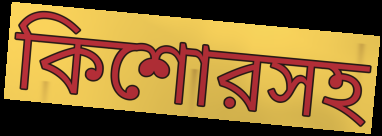
কিশোরসহ